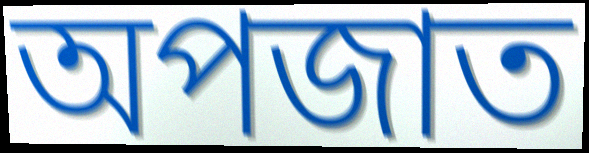
অপজাত